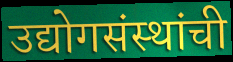
उद्योगसंस्थांची